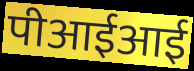
पीआईआई